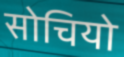
सोचियो